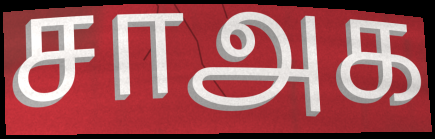
சாஅக